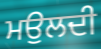
ਮਉਲਦੀ